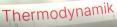
Thermodynamik